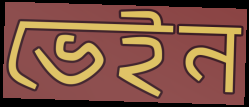
ভেইন